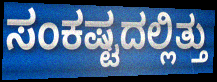
ಸಂಕಷ್ಟದಲ್ಲಿತ್ತು